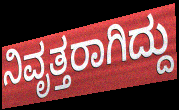
ನಿವೃತ್ತರಾಗಿದ್ದು